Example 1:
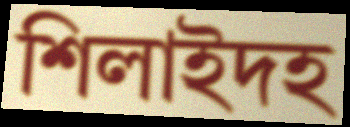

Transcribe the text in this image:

শিলাইদহ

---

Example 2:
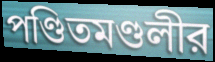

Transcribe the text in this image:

পণ্ডিতমণ্ডলীর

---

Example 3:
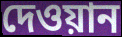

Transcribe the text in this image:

দেওয়ান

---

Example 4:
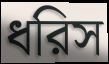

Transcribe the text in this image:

ধরিস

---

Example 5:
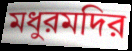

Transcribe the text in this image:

মধুরমদির